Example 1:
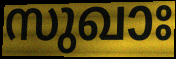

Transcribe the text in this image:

സുഖാഃ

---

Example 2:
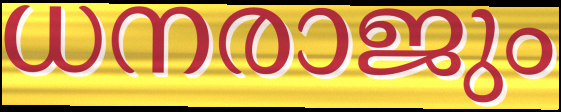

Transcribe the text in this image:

ധനരാജും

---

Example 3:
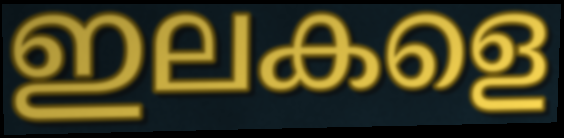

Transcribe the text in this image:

ഇലകളെ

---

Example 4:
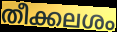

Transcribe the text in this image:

തീക്കലശം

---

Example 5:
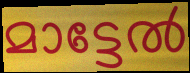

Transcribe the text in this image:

മാട്ടേൽ